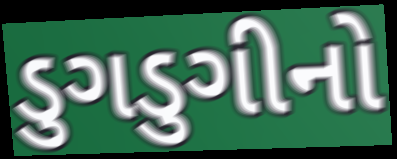
ડુગડુગીનો